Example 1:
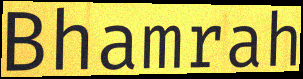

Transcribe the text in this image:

Bhamrah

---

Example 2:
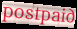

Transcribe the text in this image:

postpaid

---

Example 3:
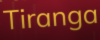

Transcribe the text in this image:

Tiranga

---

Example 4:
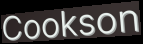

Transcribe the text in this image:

Cookson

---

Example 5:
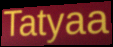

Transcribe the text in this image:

Tatyaa